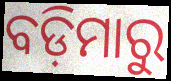
ବଡ଼ିମାରୁ